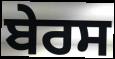
ਬੇਰਸ